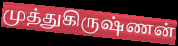
முத்துகிருஷ்ணன்